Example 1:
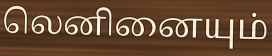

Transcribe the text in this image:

லெனினையும்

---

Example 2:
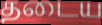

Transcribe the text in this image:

தடைய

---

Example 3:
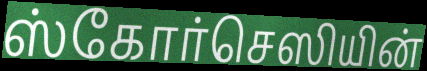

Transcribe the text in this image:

ஸ்கோர்செஸியின்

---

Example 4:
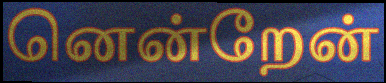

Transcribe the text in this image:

னென்றேன்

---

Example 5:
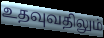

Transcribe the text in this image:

உதவுவதிலும்